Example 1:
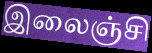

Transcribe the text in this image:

இலைஞ்சி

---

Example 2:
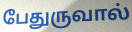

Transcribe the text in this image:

பேதுருவால்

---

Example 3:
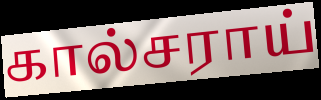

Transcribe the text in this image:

கால்சராய்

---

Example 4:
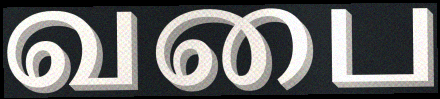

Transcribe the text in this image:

வபை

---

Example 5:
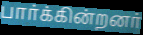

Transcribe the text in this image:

பார்க்கின்றனர்